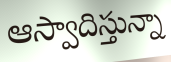
ఆస్వాదిస్తున్నా